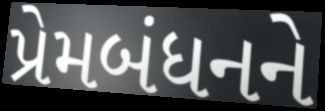
પ્રેમબંધનને